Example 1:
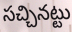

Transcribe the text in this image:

సచ్చినట్టు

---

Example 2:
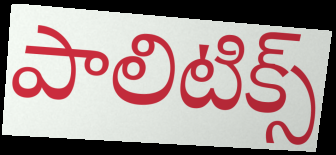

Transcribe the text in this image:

పాలిటిక్స్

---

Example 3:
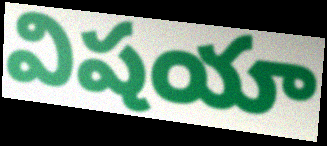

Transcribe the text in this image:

విషయా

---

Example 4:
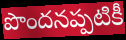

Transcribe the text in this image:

పొందనప్పటికీ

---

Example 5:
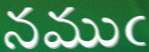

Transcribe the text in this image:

నముఁ